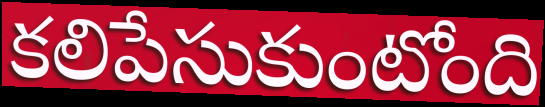
కలిపేసుకుంటోంది